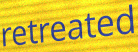
retreated